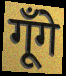
गूँगे